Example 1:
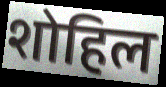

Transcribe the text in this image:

शोहिल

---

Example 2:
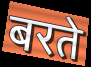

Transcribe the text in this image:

बरते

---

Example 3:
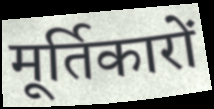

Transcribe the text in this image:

मूर्तिकारों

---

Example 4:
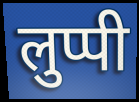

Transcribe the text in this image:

लुप्पी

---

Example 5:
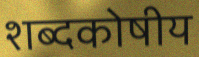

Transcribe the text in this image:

शब्दकोषीय